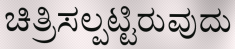
ಚಿತ್ರಿಸಲ್ಪಟ್ಟಿರುವುದು